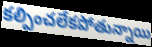
కల్పించలేకపోతున్నాయి